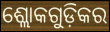
ଶ୍ଲୋକଗୁଡ଼ିକର